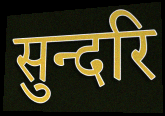
सुन्दरि